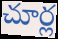
చూర్ల